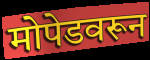
मोपेडवरून